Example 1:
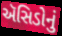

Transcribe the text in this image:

ઍસિડોનું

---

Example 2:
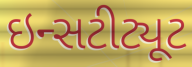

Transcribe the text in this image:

ઇન્સટીટ્યૂટ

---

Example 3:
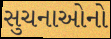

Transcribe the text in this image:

સુચનાઓનો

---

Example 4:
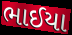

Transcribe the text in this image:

ભાઈયા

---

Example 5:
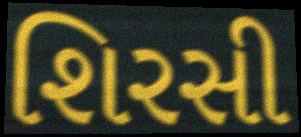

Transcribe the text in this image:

શિરસી